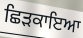
ਛਿੜਕਾਇਆ